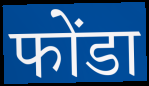
फोंडा